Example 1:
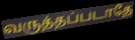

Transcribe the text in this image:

வருத்தப்படாதே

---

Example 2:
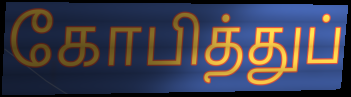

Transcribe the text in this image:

கோபித்துப்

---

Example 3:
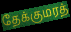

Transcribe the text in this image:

தேக்குமரத்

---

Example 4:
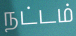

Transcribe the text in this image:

நட்டம்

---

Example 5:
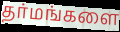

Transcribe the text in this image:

தர்மங்களை